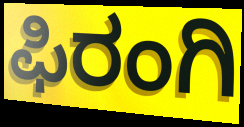
ಫಿರಂಗಿ